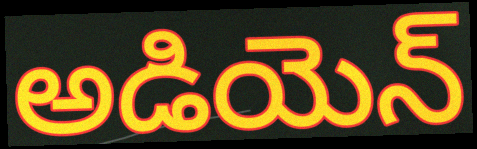
అడియెన్